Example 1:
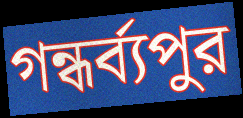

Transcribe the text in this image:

গন্ধর্ব্যপুর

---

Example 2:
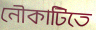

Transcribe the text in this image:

নৌকাটিতে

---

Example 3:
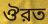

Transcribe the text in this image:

ঔরত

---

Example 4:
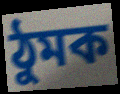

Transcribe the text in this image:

ঠুমক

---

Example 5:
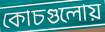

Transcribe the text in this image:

কোচগুলোয়